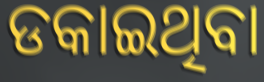
ଡକାଇଥିବା